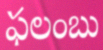
ఫలంబు